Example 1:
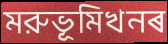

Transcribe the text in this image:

মৰুভূমিখনৰ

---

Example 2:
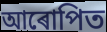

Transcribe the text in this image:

আৰোপিত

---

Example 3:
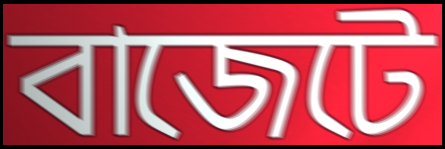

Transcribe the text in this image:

বাজেটে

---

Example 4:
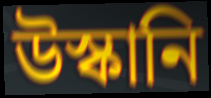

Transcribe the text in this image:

উস্কানি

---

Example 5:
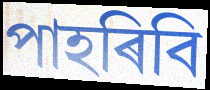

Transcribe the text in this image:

পাহৰিবি